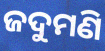
ଜଦୁମଣି